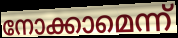
നോക്കാമെന്ന്